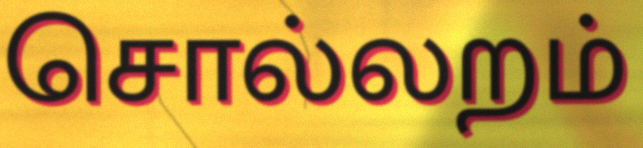
சொல்லறம்